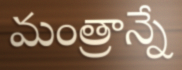
మంత్రాన్నే